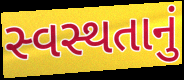
સ્વસ્થતાનું